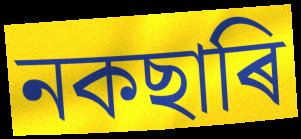
নকছাৰি